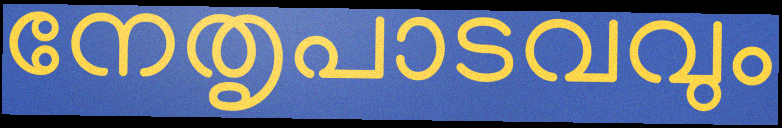
നേതൃപാടവവും